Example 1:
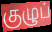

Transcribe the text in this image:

குழுப்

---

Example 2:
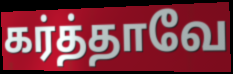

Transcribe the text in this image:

கர்த்தாவே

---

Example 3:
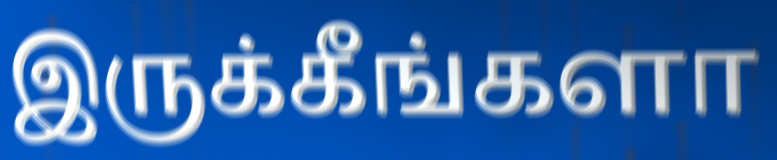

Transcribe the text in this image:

இருக்கீங்களா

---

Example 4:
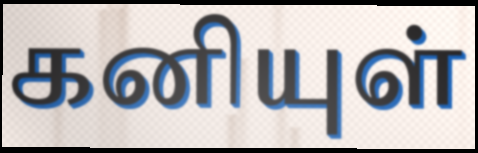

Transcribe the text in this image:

கனியுள்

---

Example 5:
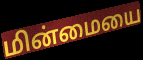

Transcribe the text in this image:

மின்மையை